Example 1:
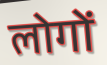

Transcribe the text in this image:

लोगों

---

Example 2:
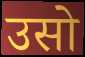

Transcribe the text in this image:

उसो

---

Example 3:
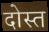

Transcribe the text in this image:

दोस्त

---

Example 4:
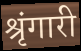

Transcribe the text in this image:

श्रृंगारी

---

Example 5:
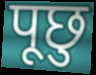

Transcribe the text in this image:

पूछु